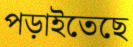
পড়াইতেছে